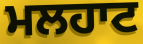
ਮਲਹਾਟ